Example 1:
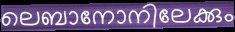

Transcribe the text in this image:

ലെബാനോനിലേക്കും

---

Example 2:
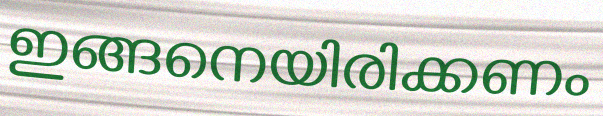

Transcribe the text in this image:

ഇങ്ങനെയിരിക്കണം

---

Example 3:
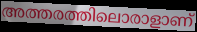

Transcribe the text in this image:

അത്തരത്തിലൊരാളാണ്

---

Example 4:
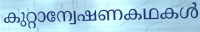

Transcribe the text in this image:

കുറ്റാന്വേഷണകഥകൾ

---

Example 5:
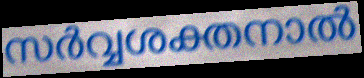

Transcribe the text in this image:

സർവ്വശക്തനാൽ